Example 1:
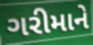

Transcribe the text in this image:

ગરીમાને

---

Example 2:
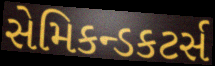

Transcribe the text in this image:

સેમિકન્ડકટર્સ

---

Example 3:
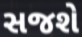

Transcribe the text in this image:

સજશે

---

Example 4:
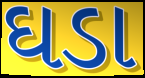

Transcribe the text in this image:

ઘડા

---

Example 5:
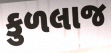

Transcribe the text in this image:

કુળલાજ